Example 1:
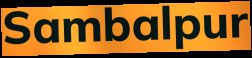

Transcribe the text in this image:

Sambalpur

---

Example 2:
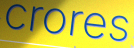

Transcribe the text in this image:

crores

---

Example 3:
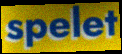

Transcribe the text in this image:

spelet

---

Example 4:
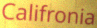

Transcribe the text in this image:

Califronia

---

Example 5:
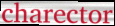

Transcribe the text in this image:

charector